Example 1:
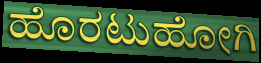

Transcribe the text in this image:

ಹೊರಟುಹೋಗಿ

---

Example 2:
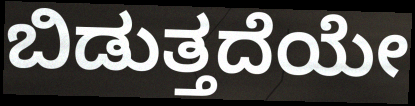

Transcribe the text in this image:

ಬಿಡುತ್ತದೆಯೇ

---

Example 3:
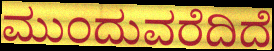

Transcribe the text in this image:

ಮುಂದುವರೆದಿದೆ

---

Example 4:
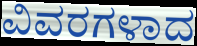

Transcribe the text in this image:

ವಿವರಗಳಾದ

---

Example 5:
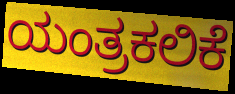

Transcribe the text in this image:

ಯಂತ್ರಕಲಿಕೆ